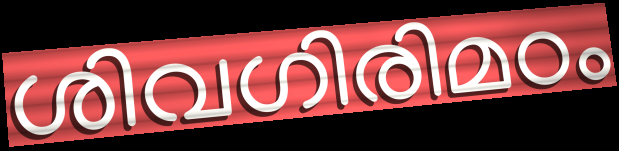
ശിവഗിരിമഠം